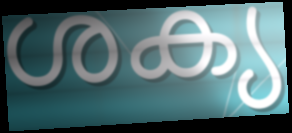
ശക്യ